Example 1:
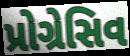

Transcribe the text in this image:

પ્રોગ્રેસિવ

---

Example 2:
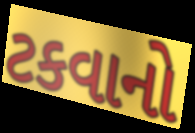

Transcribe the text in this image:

ટકવાનો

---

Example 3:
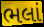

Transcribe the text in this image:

ભલાં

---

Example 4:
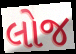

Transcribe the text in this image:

લોજ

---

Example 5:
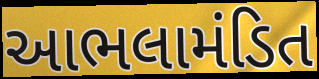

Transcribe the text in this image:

આભલામંડિત